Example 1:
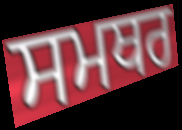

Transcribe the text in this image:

ਸਮਥਰ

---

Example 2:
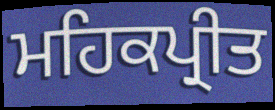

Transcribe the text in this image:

ਮਹਿਕਪ੍ਰੀਤ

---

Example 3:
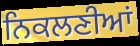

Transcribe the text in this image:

ਨਿਕਲਣੀਆਂ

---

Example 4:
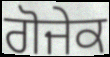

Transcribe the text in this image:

ਗੋਜੇਕ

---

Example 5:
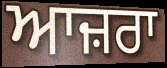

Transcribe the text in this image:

ਆਜ਼ਰਾ